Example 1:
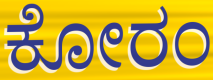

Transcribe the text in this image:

ಕೋರಂ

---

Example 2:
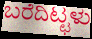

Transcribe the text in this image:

ಬರೆದಿಟ್ಟಳು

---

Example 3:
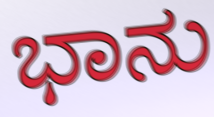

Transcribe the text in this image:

ಭಾನು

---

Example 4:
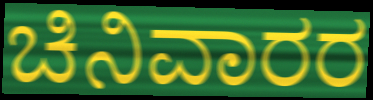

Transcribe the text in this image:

ಚಿನಿವಾರರ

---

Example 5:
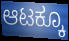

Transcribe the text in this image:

ಆಟಕ್ಕೂ